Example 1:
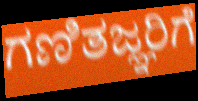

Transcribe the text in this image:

ಗಣಿತಜ್ಞರಿಗೆ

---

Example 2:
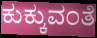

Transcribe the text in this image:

ಕುಕ್ಕುವಂತೆ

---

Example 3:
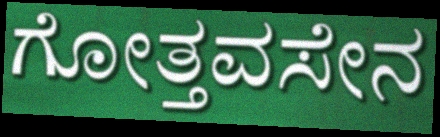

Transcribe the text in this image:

ಗೋತ್ತವಸೇನ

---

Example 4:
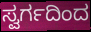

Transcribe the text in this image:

ಸ್ವರ್ಗದಿಂದ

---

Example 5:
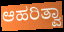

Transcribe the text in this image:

ಆಹರಿತ್ವಾ